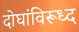
दोघांविरूध्द